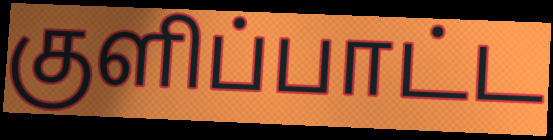
குளிப்பாட்ட